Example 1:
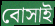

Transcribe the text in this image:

বোসাই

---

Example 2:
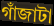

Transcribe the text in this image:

গাঁজাটা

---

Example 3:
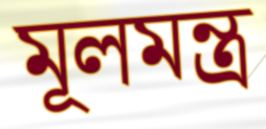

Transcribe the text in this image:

মূলমন্ত্র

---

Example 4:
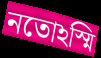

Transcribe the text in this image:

নতোঽস্মি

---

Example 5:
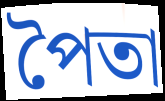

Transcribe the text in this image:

পৈতা